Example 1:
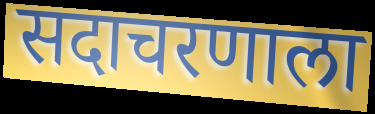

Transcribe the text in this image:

सदाचरणाला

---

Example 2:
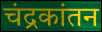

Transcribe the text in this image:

चंद्रकांतन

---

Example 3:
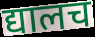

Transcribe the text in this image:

द्यालच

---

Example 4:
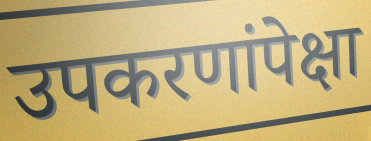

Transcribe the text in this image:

उपकरणांपेक्षा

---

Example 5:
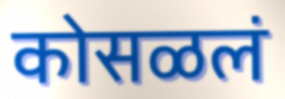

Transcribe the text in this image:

कोसळलं